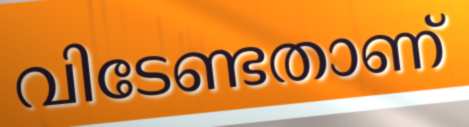
വിടേണ്ടതാണ്